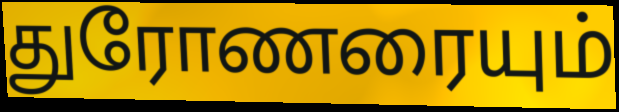
துரோணரையும்